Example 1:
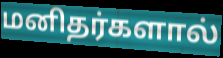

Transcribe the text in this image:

மனிதர்களால்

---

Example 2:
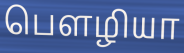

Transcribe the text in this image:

பௌழியா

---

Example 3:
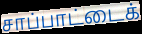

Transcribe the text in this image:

சாப்பாட்டைக்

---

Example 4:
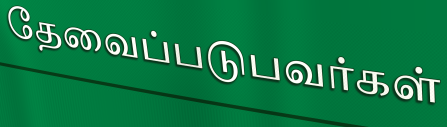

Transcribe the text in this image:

தேவைப்படுபவர்கள்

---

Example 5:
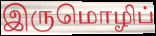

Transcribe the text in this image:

இருமொழிப்